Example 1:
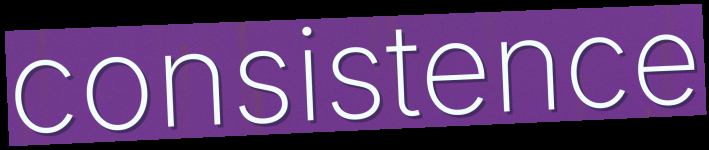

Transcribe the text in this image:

consistence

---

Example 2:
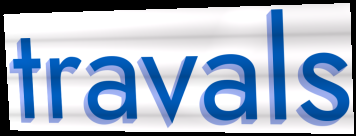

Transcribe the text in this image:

travals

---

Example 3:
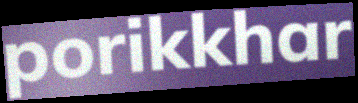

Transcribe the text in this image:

porikkhar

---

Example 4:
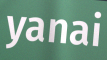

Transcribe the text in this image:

yanai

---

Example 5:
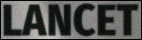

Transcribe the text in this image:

LANCET